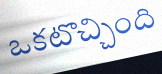
ఒకటొచ్చింది